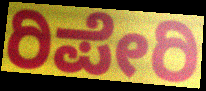
ರಿಪೇರಿ